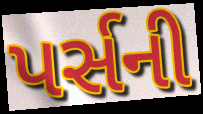
પર્સની